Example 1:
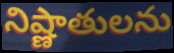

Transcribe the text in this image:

నిష్ణాతులను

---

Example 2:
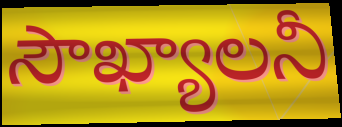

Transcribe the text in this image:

సౌఖ్యాలనీ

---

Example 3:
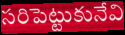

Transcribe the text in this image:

సరిపెట్టుకునేవి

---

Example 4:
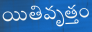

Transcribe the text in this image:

యితివృత్తం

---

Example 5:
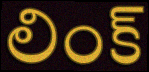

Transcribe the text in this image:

లింక్